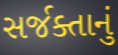
સર્જક્તાનું